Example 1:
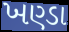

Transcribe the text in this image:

ખણ્ડા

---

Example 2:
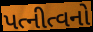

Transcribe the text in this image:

પત્નીત્વનો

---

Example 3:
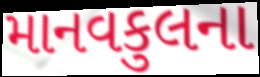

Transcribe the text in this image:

માનવકુલના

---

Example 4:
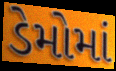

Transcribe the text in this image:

ડેમોમાં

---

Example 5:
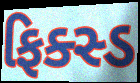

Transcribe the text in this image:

ફિક્સ્ડ